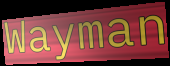
Wayman